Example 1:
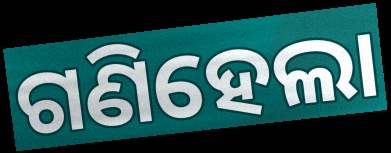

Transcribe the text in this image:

ଗଣିହେଲା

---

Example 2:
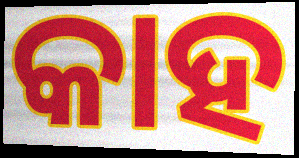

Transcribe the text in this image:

କାହ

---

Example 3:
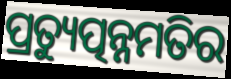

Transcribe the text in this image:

ପ୍ରତ୍ୟୁତ୍ପନ୍ନମତିର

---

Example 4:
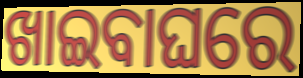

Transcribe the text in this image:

ଖାଇବାଘରେ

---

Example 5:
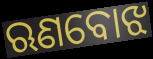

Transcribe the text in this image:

ଋଣବୋଝ